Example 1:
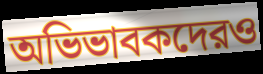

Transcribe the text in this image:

অভিভাবকদেরও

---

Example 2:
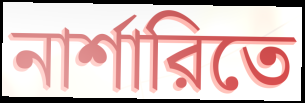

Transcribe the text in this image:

নার্শারিতে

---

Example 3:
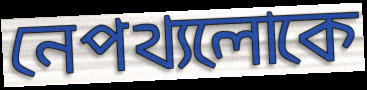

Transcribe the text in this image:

নেপথ্যলোকে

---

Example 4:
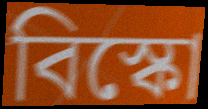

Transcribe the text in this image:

বিস্কো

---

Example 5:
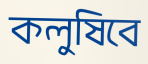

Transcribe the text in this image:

কলুষিবে